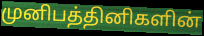
முனிபத்தினிகளின்